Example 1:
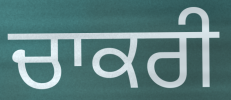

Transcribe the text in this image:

ਚਾਕਰੀ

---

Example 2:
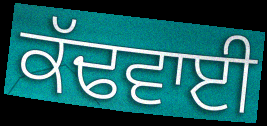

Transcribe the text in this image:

ਕੱਢਵਾਈ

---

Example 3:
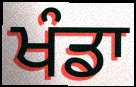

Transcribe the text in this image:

ਖੰਡਾ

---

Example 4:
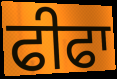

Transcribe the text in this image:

ਫੀਫਾ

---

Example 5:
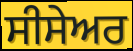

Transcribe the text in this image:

ਸੀਸੇਅਰ